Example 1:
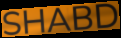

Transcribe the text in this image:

SHABD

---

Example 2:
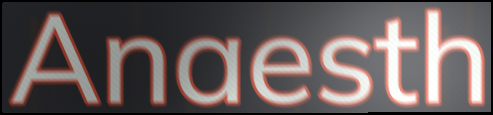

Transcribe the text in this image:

Anaesth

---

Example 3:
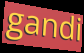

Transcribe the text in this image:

gandi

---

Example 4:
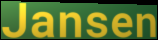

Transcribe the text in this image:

Jansen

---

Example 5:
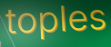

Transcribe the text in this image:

toples